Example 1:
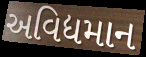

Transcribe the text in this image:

અવિદ્યમાન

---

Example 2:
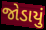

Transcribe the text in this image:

જોડાયું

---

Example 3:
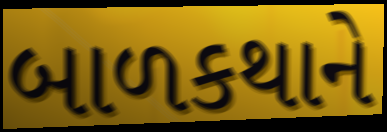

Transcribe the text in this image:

બાળકથાને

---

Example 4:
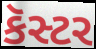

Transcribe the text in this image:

કૅસ્ટર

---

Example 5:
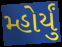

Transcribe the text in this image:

મ્હોર્યું